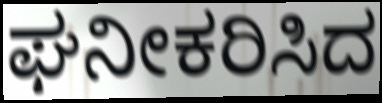
ಘನೀಕರಿಸಿದ